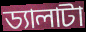
ড্যালাটা